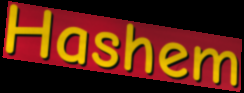
Hashem